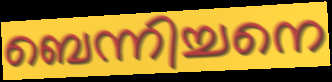
ബെന്നിച്ചനെ